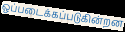
ஒப்படைக்கப்படுகின்றன